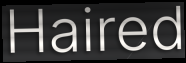
Haired